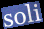
soli